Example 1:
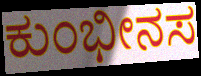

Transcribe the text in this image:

ಕುಂಭೀನಸ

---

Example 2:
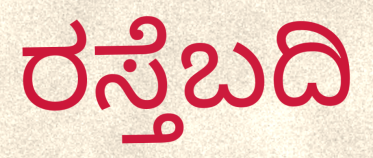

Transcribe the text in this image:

ರಸ್ತೆಬದಿ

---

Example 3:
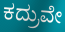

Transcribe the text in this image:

ಕದ್ರುವೇ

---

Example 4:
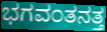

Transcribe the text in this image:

ಭಗವಂತನತ್ತ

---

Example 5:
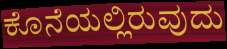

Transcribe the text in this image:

ಕೊನೆಯಲ್ಲಿರುವುದು